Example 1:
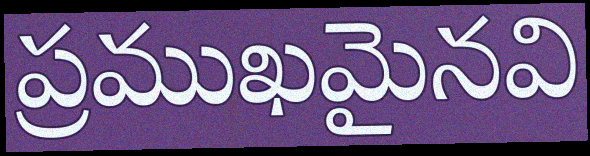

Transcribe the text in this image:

ప్రముఖమైనవి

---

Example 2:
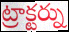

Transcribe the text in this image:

ట్రాక్టర్ను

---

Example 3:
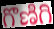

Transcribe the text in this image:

గొణిగి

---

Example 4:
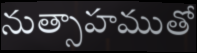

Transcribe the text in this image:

నుత్సాహముతో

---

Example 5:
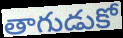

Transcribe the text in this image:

తాగుడుకో